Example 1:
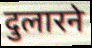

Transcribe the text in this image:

दुलारने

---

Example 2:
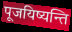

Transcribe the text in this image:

पूजयिष्यन्ति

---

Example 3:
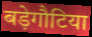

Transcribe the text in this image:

बड़ेगौटिया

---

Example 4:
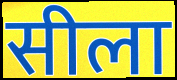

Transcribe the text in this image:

सीला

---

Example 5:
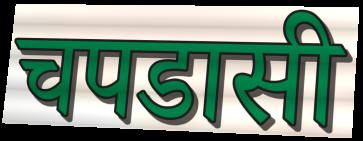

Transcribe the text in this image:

चपडासी